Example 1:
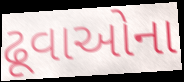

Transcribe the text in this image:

ઢૂવાઓના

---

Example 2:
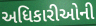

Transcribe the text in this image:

અધિકારીઓની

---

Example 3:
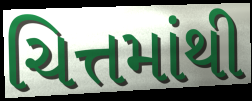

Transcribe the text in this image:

ચિત્તમાંથી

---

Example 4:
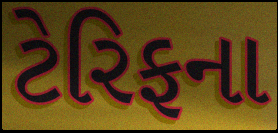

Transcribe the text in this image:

ટેરિફના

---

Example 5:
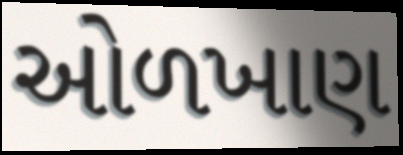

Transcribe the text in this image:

ઓળખાણ